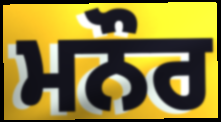
ਮਨੌਰ